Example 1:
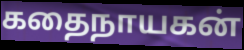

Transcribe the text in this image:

கதைநாயகன்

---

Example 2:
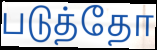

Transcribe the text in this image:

படுத்தோ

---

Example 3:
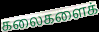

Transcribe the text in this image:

கலைகளைக்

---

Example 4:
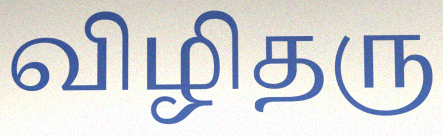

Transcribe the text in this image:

விழிதரு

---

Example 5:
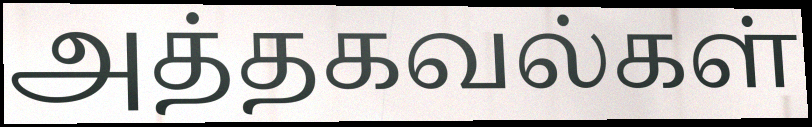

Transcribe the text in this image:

அத்தகவல்கள்